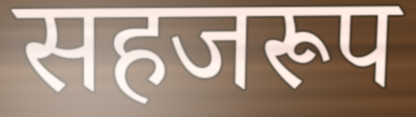
सहजरूप